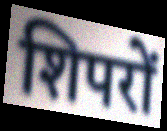
शिपरों